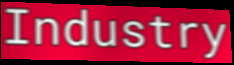
Industry